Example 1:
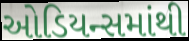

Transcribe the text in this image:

ઓડિયન્સમાંથી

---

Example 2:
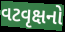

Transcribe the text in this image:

વટવૃક્ષનો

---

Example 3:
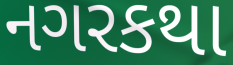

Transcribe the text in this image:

નગરકથા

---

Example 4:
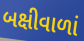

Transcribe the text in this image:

બક્ષીવાળાં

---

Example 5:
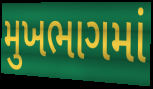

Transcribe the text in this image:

મુખભાગમાં